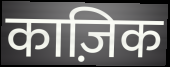
काज़िक